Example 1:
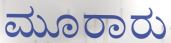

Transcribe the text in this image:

ಮೂರಾರು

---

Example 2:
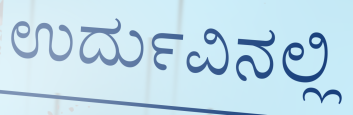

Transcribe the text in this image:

ಉರ್ದುವಿನಲ್ಲಿ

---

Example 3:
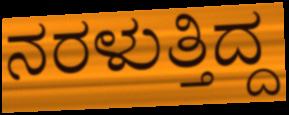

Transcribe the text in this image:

ನರಳುತ್ತಿದ್ದ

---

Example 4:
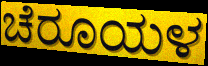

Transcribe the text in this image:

ಚೆರೂಯಳ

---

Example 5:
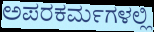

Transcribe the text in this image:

ಅಪರಕರ್ಮಗಳಲ್ಲಿ